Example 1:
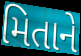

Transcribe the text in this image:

મિતાને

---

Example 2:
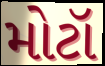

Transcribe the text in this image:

મોટૉ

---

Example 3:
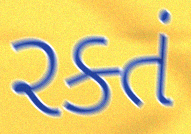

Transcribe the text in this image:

રક્તં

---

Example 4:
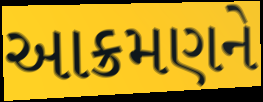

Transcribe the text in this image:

આક્રમણને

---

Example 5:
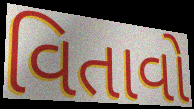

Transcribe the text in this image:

વિતાવો